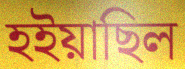
হইয়াছিল